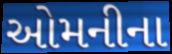
ઓમનીના